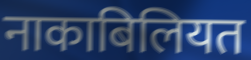
नाकाबिलियत